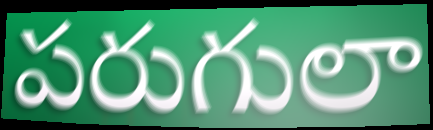
పరుగులా